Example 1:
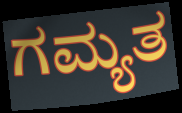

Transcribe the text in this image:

ಗಮ್ಯತ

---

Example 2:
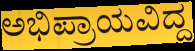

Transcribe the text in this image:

ಅಭಿಪ್ರಾಯವಿದ್ದ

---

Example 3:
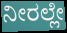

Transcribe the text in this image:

ನೀರಲ್ಲೇ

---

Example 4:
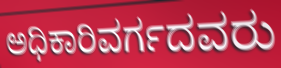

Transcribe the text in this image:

ಅಧಿಕಾರಿವರ್ಗದವರು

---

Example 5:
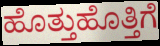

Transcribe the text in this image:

ಹೊತ್ತುಹೊತ್ತಿಗೆ